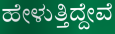
ಹೇಳುತ್ತಿದ್ದೇವೆ